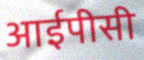
आईपीसी